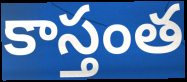
కాస్తంత